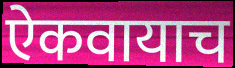
ऐकवायाच